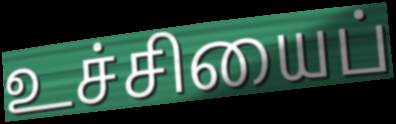
உச்சியைப்